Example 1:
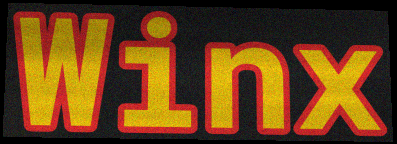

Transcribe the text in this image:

Winx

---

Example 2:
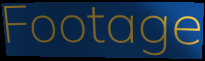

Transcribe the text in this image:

Footage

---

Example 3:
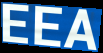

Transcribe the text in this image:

EEA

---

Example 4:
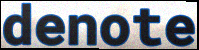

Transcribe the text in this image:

denote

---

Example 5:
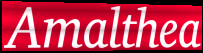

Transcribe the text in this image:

Amalthea